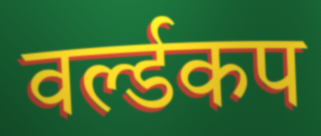
वर्ल्डकप